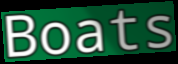
Boats